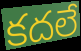
కదలే